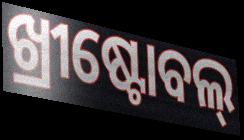
ଖ୍ରୀଷ୍ଟୋବଲ୍